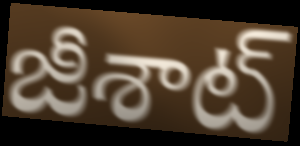
జీశాట్